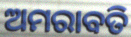
ଅମରାବତି